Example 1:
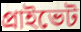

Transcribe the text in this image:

প্রাইভেট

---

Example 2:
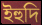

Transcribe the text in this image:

ইহুদি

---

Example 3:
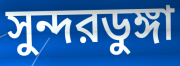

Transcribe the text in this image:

সুন্দরডুঙ্গা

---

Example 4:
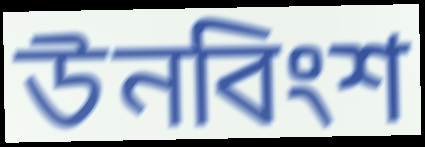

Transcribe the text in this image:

উনবিংশ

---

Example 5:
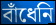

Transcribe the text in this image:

বাঁধেনি